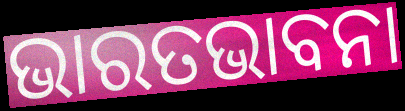
ଭାରତଭାବନା